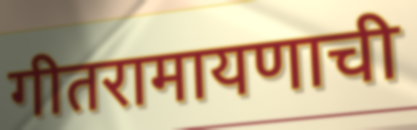
गीतरामायणाची